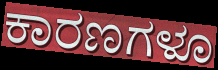
ಕಾರಣಗಳೂ